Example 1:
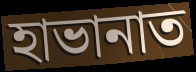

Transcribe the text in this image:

হাভানাত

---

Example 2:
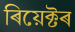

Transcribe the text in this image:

ৰিয়েক্টৰ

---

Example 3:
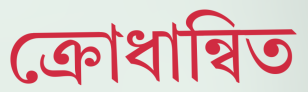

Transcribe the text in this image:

ক্ৰোধান্বিত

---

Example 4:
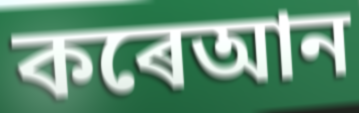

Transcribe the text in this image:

কৰেআন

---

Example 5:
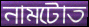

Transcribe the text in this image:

নামটোত